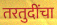
तरतुदींचा